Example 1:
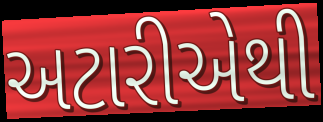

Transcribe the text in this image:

અટારીએથી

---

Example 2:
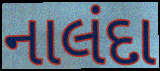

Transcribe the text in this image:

નાલંદા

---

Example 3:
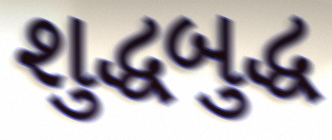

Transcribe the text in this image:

શુદ્ધબુદ્ધ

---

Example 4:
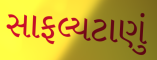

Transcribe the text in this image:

સાફલ્યટાણું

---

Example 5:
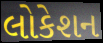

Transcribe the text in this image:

લોકેશન